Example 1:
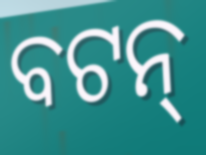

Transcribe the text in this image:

ବଟନ୍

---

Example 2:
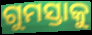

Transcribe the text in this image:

ଗୁମସ୍ତାକୁ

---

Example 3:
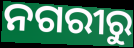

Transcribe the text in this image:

ନଗରୀରୁ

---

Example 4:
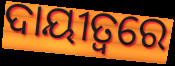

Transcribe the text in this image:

ଦାୟୀତ୍ଵରେ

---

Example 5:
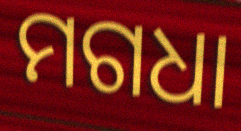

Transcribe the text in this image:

ମଗଧା